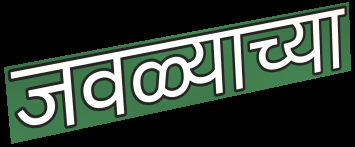
जवळ्याच्या